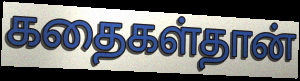
கதைகள்தான்